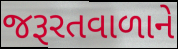
જરૂરતવાળાને